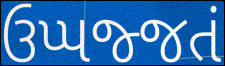
ઉપ્પજ્જતં